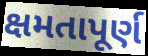
ક્ષમતાપૂર્ણ